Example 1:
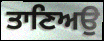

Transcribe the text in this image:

ਤਾਣਿਅਉ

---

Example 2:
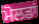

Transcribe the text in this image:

ਮੋਲਡਾਂ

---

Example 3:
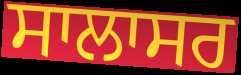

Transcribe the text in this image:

ਸਾਲਾਸਰ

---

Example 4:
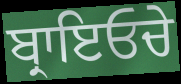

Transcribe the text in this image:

ਬ੍ਰਾਇਓਚੇ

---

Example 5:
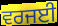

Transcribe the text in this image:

ਵਰਜਈ